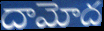
దామోద